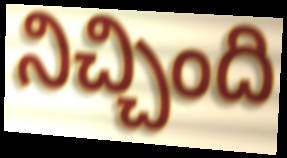
నిచ్చింది